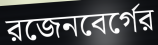
রজেনবের্গের